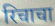
रिचाचा